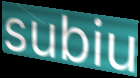
subiu